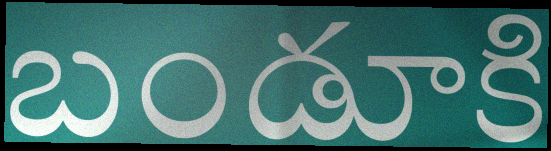
బండూకి